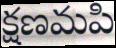
క్షణమపి